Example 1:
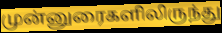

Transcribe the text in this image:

முன்னுரைகளிலிருந்து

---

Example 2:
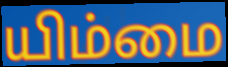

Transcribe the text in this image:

யிம்மை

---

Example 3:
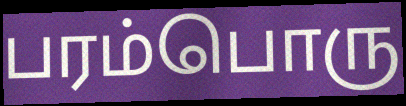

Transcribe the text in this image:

பரம்பொரு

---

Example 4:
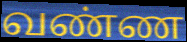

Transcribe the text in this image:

வண்ண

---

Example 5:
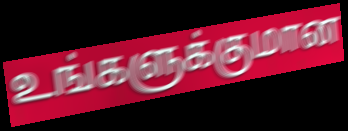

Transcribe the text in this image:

உங்களுக்குமான